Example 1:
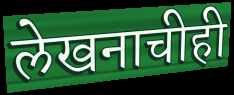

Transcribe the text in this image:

लेखनाचीही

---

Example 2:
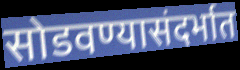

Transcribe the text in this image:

सोडवण्यासंदर्भात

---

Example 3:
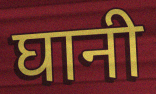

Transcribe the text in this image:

घानी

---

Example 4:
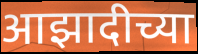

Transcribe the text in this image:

आझादीच्या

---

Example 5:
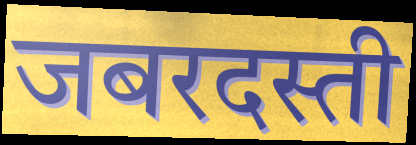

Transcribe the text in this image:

जबरदस्ती